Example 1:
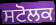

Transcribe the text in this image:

ਸਟੋਲਕ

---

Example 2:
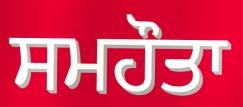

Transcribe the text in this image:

ਸਮਹੌਤਾ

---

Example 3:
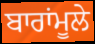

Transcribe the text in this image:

ਬਾਰਾਂਮੂਲੇ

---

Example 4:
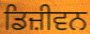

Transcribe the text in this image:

ਡਿਜ਼ੀਵਨ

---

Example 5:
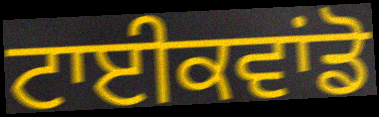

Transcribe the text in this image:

ਟਾਈਕਵਾਂਡੋ